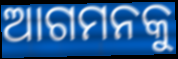
ଆଗମନକୁ